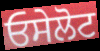
ਓਸੇਲੋਟ